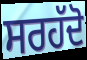
ਸਰਹੱਦੋ